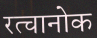
रत्चानोक